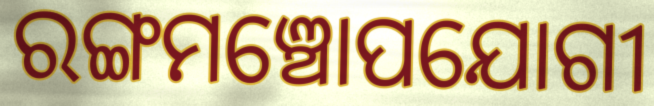
ରଙ୍ଗମଞ୍ଚୋପଯୋଗୀ